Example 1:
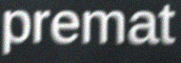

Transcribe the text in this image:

premat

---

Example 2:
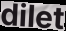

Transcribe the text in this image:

dilet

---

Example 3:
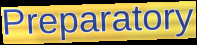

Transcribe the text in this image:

Preparatory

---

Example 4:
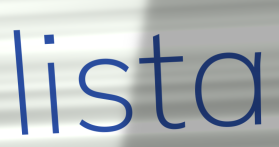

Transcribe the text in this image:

lista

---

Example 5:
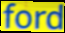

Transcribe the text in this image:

ford